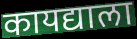
कायद्याला